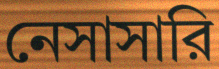
নেসাসারি